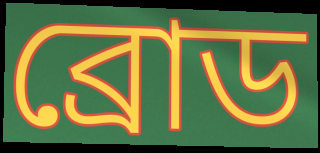
ব্রোড